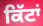
ਕਿੱਟਾਂ